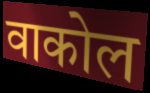
वाकोल